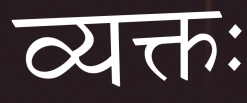
व्यक्तः